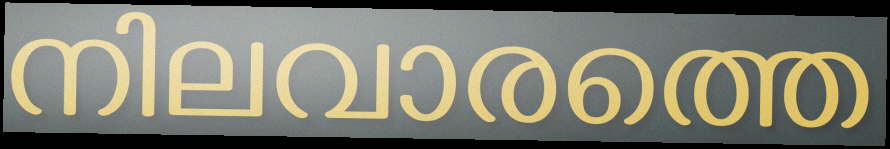
നിലവാരത്തെ